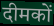
दीमकों